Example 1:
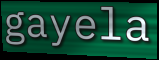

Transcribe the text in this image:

gayela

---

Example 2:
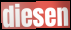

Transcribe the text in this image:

diesen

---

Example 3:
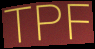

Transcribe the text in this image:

TPF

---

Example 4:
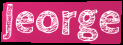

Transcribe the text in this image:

Jeorge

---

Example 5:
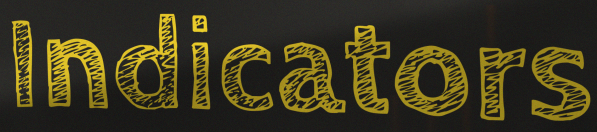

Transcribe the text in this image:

Indicators